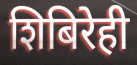
शिबिरेही